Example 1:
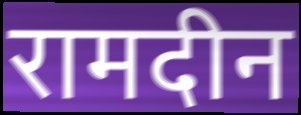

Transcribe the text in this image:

रामदीन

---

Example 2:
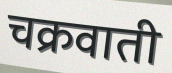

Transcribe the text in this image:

चक्रवाती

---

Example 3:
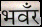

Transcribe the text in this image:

भवँर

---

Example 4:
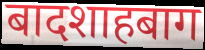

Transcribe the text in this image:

बादशाहबाग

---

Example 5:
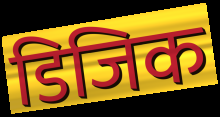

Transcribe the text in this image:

डिजिक